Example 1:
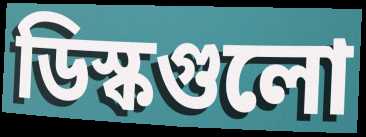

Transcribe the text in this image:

ডিস্কগুলো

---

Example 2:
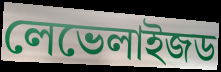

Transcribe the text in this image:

লেভেলাইজড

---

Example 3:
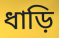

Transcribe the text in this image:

ধাড়ি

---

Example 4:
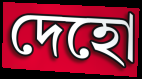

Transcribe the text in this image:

দেহো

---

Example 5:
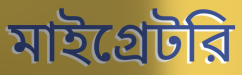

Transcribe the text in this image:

মাইগ্রেটরি